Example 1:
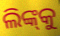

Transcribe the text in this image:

ଲିଙ୍କ୍‌କୁ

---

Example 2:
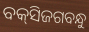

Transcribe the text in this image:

ବକ୍‌ସିଜଗବନ୍ଧୁ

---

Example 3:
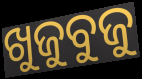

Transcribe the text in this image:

ଖୁଜୁବୁଜୁ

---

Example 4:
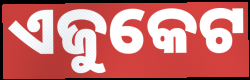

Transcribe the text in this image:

ଏଜୁକେଟ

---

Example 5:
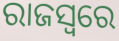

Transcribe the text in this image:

ରାଜସ୍ବରେ